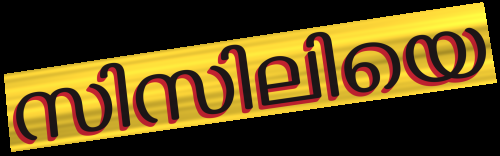
സിസിലിയെ